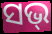
ସଭ୍